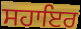
ਸਹਾਇਰ